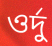
ওর্দু